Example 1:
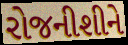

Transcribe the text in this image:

રોજનીશીને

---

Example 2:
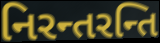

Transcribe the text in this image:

નિરન્તરન્તિ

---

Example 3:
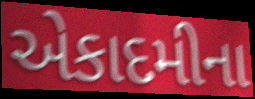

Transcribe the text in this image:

એકાદમીના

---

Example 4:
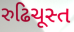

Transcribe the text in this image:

રુઢિચૂસ્ત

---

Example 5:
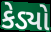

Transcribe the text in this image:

કેડ્યો